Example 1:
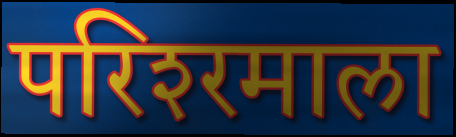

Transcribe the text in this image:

परिश्रमाला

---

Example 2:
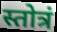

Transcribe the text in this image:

स्तोत्रं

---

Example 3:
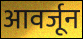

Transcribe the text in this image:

आवर्जून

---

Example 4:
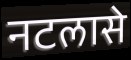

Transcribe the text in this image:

नटलासे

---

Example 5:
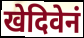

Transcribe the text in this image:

खेदिवेनं